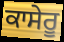
ਕਾਸੇਰੂ